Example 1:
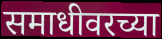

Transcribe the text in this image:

समाधीवरच्या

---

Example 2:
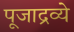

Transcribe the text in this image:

पूजाद्रव्ये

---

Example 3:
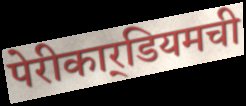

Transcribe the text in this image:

पेरीकार्डियमची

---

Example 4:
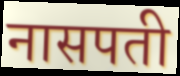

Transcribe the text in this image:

नासपती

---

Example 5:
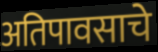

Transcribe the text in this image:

अतिपावसाचे